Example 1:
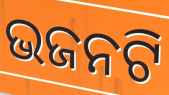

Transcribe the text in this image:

ଭଜନଟି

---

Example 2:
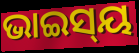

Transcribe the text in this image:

ଭାଇସ୍‌ୟ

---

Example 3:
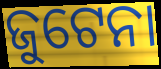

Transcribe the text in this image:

ଜୁଟେନା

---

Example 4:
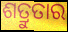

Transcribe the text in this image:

ଶତ୍ରୁତାର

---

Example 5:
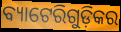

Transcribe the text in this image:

ବ୍ୟାଟେରିଗୁଡ଼ିକର